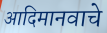
आदिमानवाचे